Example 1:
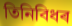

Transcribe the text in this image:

তিনিবিধৰ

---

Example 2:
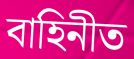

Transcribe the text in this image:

বাহিনীত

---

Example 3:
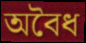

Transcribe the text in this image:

অবৈধ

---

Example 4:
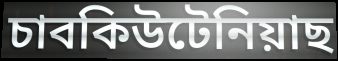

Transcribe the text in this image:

চাবকিউটেনিয়াছ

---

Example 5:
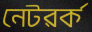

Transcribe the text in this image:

নেটৱৰ্ক